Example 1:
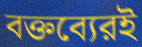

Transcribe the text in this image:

বক্তব্যেরই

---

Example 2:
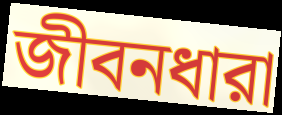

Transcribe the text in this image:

জীবনধারা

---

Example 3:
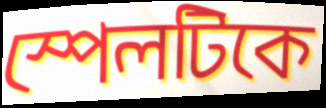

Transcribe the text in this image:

স্পেলটিকে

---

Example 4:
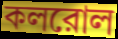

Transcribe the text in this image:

কলরোল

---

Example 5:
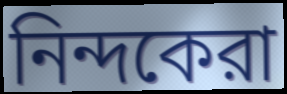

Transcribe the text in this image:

নিন্দকেরা